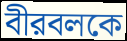
বীরবলকে